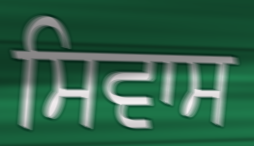
ਸਿਵਾਸ